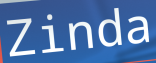
Zinda